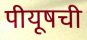
पीयूषची